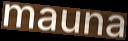
mauna